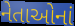
નેતાઓનાં